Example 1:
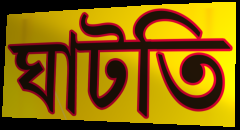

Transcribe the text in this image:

ঘাটতি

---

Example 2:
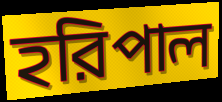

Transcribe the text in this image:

হরিপাল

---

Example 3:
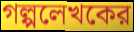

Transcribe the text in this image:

গল্পলেখকের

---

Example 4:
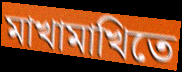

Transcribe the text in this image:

মাখামাখিতে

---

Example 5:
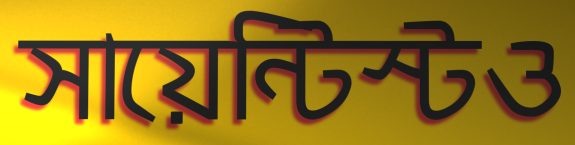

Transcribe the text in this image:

সায়েন্টিস্টও